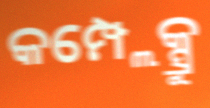
କମ୍ପ୍ଲେକ୍ସ୍ରୁ